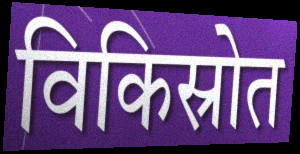
विकिस्रोत